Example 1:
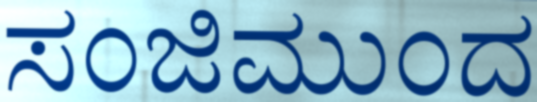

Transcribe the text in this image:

ಸಂಜಿಮುಂದ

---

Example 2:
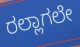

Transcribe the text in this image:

ರಲ್ಲಾಗಲೇ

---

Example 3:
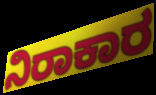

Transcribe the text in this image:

ನಿರಾಕಾರ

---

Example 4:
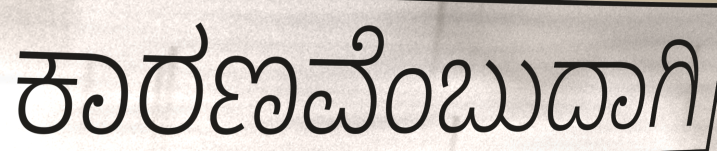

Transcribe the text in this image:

ಕಾರಣವೆಂಬುದಾಗಿ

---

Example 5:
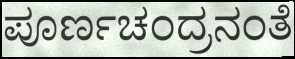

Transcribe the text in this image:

ಪೂರ್ಣಚಂದ್ರನಂತೆ